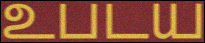
உபடய